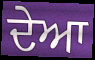
ਦੇਆ